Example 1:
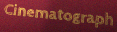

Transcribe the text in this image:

Cinematograph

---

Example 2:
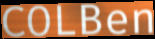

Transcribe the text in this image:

COLBen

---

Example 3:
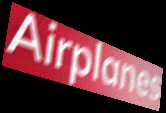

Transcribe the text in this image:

Airplanes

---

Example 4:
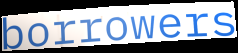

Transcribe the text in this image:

borrowers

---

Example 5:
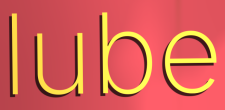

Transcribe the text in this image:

lube